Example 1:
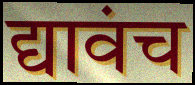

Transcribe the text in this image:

द्यावंच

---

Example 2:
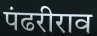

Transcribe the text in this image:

पंढरीराव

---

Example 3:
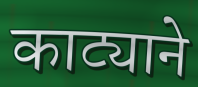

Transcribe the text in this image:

काट्याने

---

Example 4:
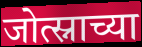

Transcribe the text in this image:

जोत्स्नाच्या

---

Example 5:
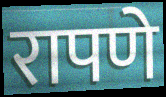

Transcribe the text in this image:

रापणे